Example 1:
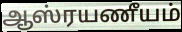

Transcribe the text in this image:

ஆஸ்ரயணீயம்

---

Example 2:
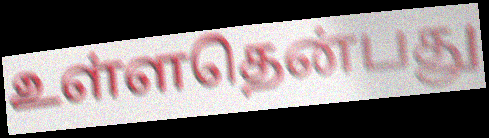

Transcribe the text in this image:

உள்ளதென்பது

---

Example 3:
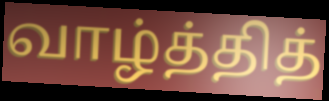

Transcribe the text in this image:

வாழ்த்தித்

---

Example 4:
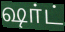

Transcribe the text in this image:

ஷர்ட்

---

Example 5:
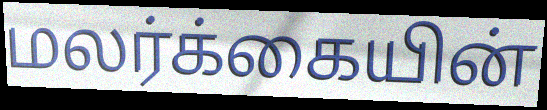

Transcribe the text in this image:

மலர்க்கையின்